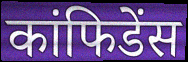
कांफिडेंस